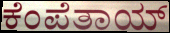
ಕೆಂಪೆತಾಯ್